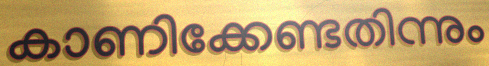
കാണിക്കേണ്ടതിന്നും